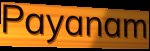
Payanam